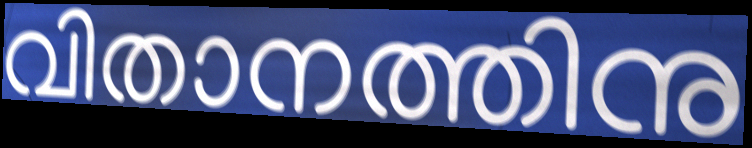
വിതാനത്തിനു